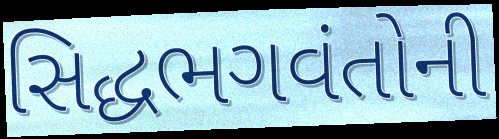
સિદ્ધભગવંતોની